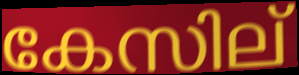
കേസില്